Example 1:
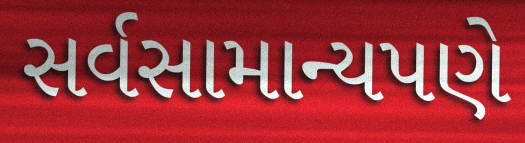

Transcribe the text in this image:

સર્વસામાન્યપણે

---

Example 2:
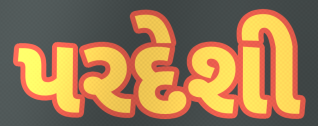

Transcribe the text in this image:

પરદેશી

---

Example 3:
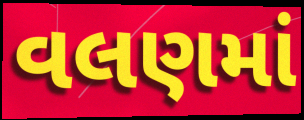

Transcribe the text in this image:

વલણમાં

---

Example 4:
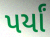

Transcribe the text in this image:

પર્યાં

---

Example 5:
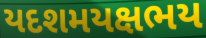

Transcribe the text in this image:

યદશમયક્ષભય